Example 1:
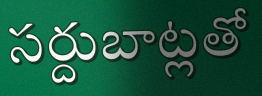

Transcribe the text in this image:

సర్దుబాట్లతో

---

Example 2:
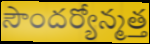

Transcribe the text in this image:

సౌందర్యోన్మత్త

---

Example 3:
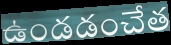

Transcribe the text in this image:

ఉండడంచేత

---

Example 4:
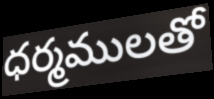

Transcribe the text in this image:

ధర్మములతో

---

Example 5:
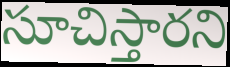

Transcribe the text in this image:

సూచిస్తారని